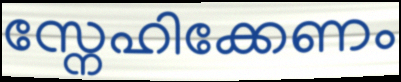
സ്നേഹിക്കേണം